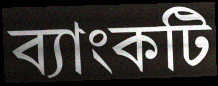
ব্যাংকটি